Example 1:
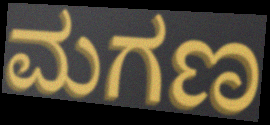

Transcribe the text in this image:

ಮಗಣ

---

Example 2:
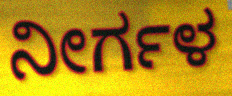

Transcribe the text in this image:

ನೀರ್ಗಳ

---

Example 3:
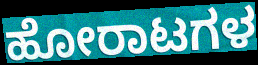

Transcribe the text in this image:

ಹೋರಾಟಗಳ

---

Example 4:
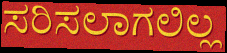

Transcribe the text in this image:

ಸರಿಸಲಾಗಲಿಲ್ಲ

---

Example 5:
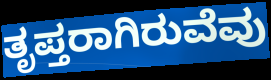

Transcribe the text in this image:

ತೃಪ್ತರಾಗಿರುವೆವು